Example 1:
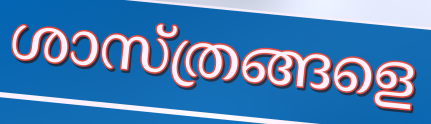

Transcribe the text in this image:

ശാസ്ത്രങ്ങളെ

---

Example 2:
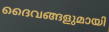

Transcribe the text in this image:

ദൈവങ്ങളുമായി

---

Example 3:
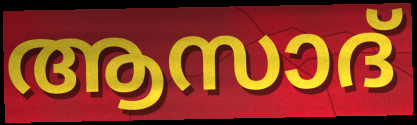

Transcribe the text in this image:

ആസാദ്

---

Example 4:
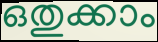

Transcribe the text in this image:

ഒതുക്കാം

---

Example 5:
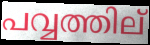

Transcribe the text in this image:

പവ്വത്തില്